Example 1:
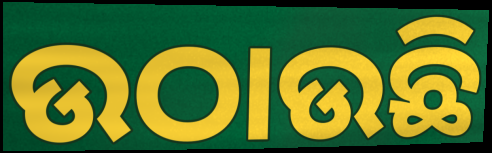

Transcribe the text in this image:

ଉଠାଉଛି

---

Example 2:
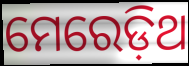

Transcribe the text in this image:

ମେରେଡ଼ିଥ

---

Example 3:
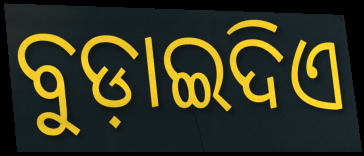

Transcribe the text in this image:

ବୁଡ଼ାଇଦିଏ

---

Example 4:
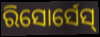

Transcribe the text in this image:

ରିସୋର୍ସେସ୍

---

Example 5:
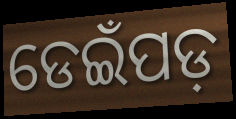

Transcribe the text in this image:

ଡେଇଁପଡ଼